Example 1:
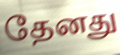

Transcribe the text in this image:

தேனது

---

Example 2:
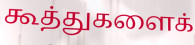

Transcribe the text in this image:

கூத்துகளைக்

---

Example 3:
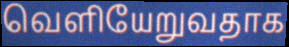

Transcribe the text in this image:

வெளியேறுவதாக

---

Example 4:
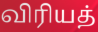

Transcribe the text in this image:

விரியத்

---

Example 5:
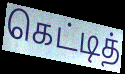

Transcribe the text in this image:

கெட்டித்